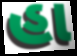
હા